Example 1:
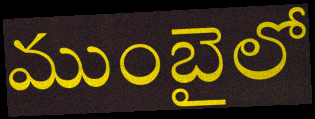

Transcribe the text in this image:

ముంబైలో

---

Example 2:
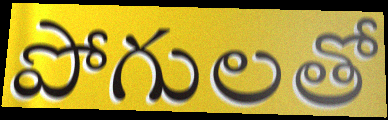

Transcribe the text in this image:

పోగులతో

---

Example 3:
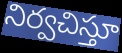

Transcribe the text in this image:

నిర్వచిస్తూ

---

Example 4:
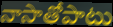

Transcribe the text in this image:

నాసాతోపాటు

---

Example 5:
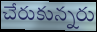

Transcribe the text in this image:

చేరుకున్నరు